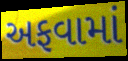
અફવામાં